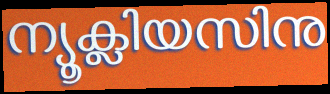
ന്യൂക്ലിയസിനു